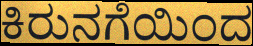
ಕಿರುನಗೆಯಿಂದ